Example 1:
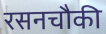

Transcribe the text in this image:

रसनचौकी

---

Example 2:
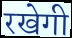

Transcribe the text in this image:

रखेगी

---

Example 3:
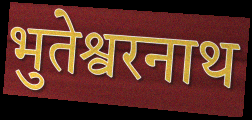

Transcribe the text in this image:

भुतेश्वरनाथ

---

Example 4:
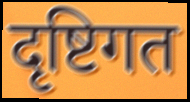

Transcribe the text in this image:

दृष्टिगत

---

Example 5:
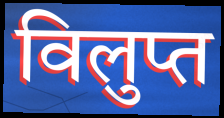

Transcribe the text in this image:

विलुप्त